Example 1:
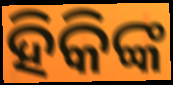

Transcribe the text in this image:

ହିକିଙ୍କ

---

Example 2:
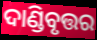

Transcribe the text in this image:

ଦାଣ୍ଡିବୃତ୍ତର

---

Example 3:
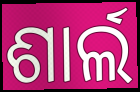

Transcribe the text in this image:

ଶାର୍ଲ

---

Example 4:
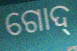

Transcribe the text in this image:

ଗୋଦ୍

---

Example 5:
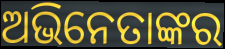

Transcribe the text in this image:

ଅଭିନେତାଙ୍କର